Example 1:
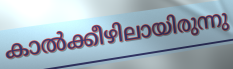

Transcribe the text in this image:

കാൽക്കീഴിലായിരുന്നു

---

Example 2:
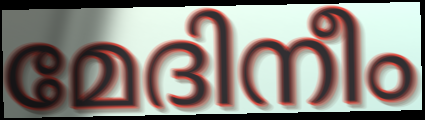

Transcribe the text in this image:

മേദിനീം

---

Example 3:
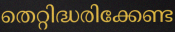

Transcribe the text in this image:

തെറ്റിദ്ധരിക്കേണ്ട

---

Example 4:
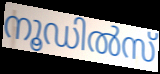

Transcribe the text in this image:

നൂഡിൽസ്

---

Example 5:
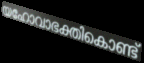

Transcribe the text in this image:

യഹോവാഭക്തികൊണ്ട്